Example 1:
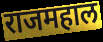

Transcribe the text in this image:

राजमहाल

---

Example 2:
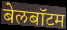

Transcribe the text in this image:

बेलबॉटम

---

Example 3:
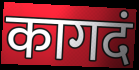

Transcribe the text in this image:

कागदं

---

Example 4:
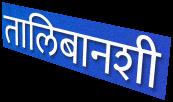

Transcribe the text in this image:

तालिबानशी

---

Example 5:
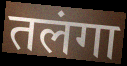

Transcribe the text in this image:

तलंगा